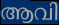
ആവി